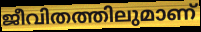
ജീവിതത്തിലുമാണ്